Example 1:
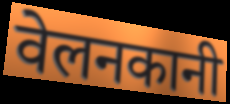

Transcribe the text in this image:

वेलनकानी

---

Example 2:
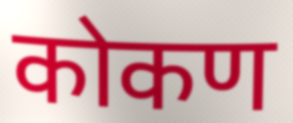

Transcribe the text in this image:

कोकण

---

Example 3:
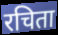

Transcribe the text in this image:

रचिता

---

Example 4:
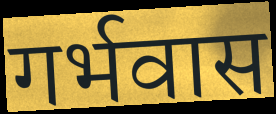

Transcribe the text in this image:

गर्भवास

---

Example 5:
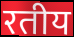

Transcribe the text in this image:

रतीय